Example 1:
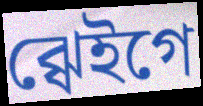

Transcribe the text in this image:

ঝ্ৱেইগে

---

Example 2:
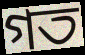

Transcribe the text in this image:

গত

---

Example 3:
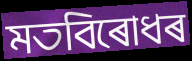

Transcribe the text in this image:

মতবিৰোধৰ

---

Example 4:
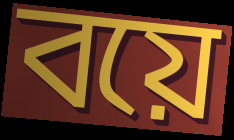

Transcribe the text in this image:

বয়ে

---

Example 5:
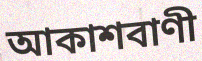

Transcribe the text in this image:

আকাশবাণী